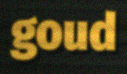
goud